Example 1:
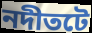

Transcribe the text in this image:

নদীতটে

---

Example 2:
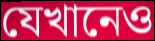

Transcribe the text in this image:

যেখানেও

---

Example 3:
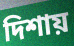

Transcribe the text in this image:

দিশায়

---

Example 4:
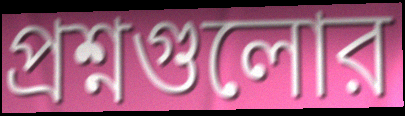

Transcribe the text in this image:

প্রশ্নগুলোর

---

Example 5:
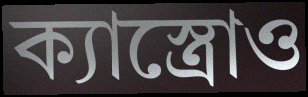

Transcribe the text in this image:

ক্যাস্ত্রোও